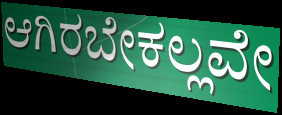
ಆಗಿರಬೇಕಲ್ಲವೇ